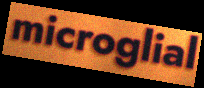
microglial